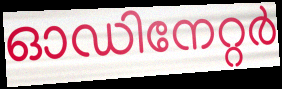
ഓഡിനേറ്റർ